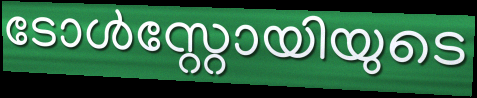
ടോൾസ്റ്റോയിയുടെ